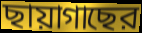
ছায়াগাছের